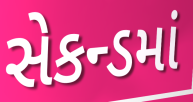
સેકન્ડમાં